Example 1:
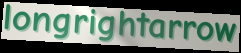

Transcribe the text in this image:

longrightarrow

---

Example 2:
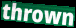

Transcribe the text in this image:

thrown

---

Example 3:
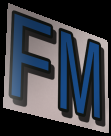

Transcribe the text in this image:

FM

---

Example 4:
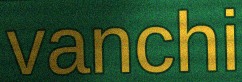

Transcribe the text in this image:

vanchi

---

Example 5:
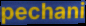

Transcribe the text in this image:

pechani